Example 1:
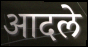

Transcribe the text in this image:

आदले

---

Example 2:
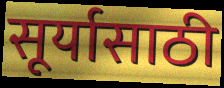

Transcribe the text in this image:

सूर्यासाठी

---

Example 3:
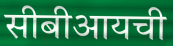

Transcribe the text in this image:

सीबीआयची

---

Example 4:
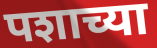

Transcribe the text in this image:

पशाच्या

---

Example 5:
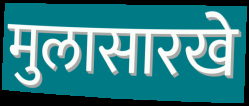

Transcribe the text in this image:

मुलासारखे